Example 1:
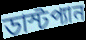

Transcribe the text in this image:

ডাস্টপ্যান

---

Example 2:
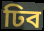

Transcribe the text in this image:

ঢিব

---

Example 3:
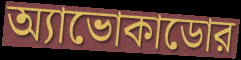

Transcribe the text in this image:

অ্যাভোকাডোর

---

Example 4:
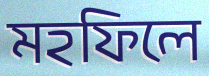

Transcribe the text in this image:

মহফিলে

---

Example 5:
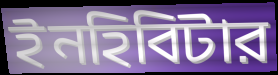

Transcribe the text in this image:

ইনহিবিটার